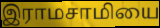
இராமசாமியை